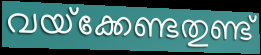
വയ്‌ക്കേണ്ടതുണ്ട്